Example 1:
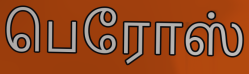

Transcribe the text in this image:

பெரோஸ்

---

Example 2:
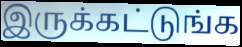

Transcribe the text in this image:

இருக்கட்டுங்க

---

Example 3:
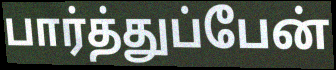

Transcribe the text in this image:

பார்த்துப்பேன்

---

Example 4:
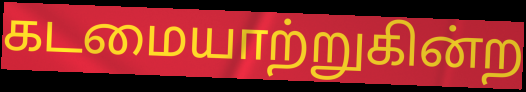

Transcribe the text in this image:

கடமையாற்றுகின்ற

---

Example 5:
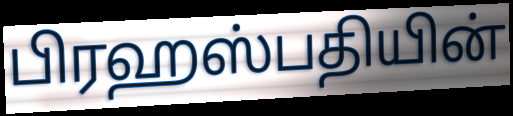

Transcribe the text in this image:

பிரஹஸ்பதியின்